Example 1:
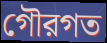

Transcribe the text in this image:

গৌরগত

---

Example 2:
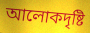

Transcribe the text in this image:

আলোকদৃষ্টি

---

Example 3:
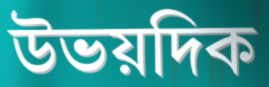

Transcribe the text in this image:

উভয়দিক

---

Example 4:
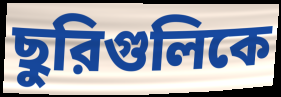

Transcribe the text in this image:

ছুরিগুলিকে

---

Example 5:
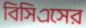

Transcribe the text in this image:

বিসিএসের